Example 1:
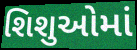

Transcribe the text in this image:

શિશુઓમાં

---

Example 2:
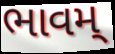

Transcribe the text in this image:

ભાવમ્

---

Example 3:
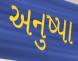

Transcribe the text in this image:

અનુષ્પા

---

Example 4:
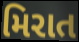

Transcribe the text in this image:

મિરાત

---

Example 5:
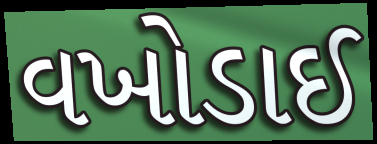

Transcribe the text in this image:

વખોડાઈ